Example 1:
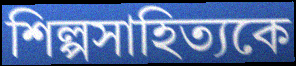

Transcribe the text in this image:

শিল্পসাহিত্যকে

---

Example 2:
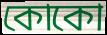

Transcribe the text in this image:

কোকো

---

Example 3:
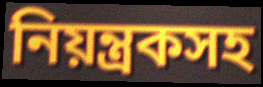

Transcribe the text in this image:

নিয়ন্ত্রকসহ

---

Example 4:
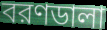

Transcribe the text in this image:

বরণডালা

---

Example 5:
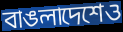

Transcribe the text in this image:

বাঙলাদেশেও